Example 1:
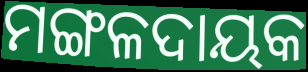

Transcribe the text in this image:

ମଙ୍ଗଳଦାୟକ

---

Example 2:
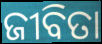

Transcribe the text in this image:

ଜୀବିତା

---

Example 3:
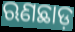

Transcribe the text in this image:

ଋଣଛାଡ଼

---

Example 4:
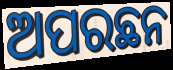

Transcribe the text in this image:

ଅପରଛନ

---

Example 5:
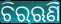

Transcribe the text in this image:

ଚିରଋଣି